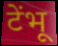
टेंभू